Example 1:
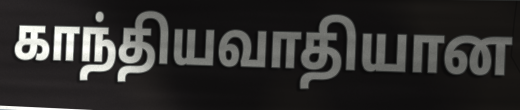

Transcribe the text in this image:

காந்தியவாதியான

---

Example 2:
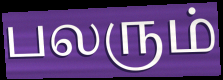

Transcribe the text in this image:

பலரும்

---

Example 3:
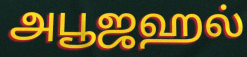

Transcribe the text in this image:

அபூஜஹல்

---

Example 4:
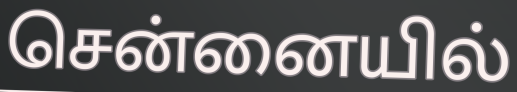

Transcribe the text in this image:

சென்னையில்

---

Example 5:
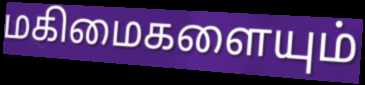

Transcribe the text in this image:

மகிமைகளையும்